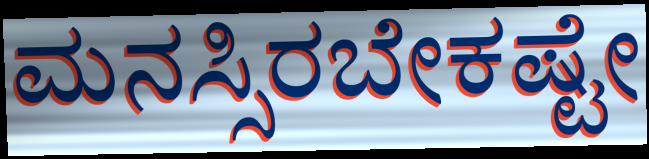
ಮನಸ್ಸಿರಬೇಕಷ್ಟೇ